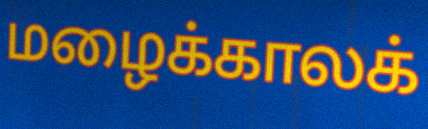
மழைக்காலக்